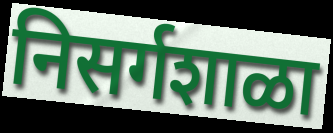
निसर्गशाळा